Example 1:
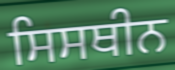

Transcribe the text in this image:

ਸਿਸਥੀਨ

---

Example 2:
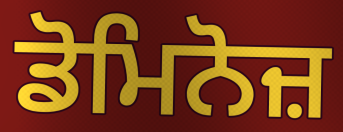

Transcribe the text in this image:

ਡੋਮਿਨੋਜ਼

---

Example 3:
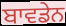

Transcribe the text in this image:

ਬਾਵਡੇਨ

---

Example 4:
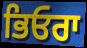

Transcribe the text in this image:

ਭਿਓਰਾ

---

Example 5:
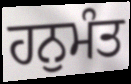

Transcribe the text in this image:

ਹਨੁਮੰਤ